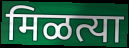
मिळत्या